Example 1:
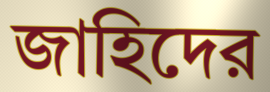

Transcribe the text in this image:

জাহিদের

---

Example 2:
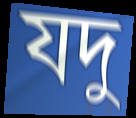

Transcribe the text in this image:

যদু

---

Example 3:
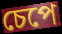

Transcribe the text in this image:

চেপে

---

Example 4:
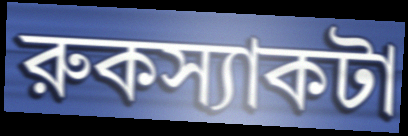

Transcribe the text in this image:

রুকস্যাকটা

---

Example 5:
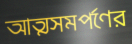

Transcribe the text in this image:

আত্মসমর্পণের